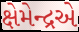
ક્ષેમેન્દ્રએ